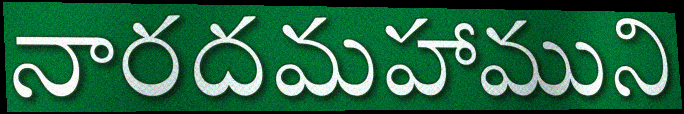
నారదమహాముని